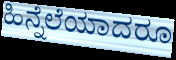
ಹಿನ್ನೆಲೆಯಾದರೂ